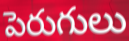
పెరుగులు